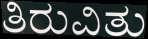
ತಿರುವಿತು